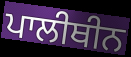
ਪਾਲੀਥੀਨ